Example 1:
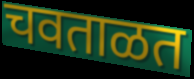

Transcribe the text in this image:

चवताळत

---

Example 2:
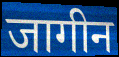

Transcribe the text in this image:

जागीन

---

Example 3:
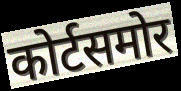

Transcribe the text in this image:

कोर्टसमोर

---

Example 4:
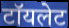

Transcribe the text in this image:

टॉयलेट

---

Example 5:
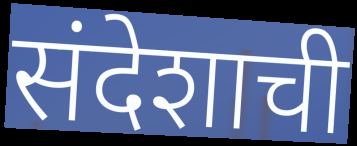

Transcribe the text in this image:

संदेशाची